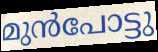
മുൻപോട്ടു